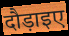
दौड़ाइए